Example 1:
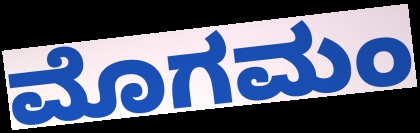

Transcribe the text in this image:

ಮೊಗಮಂ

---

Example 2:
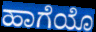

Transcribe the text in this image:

ಹಾಗೆಯೊ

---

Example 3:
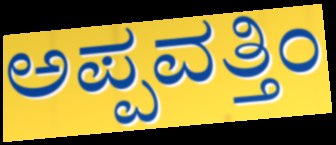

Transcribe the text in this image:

ಅಪ್ಪವತ್ತಿಂ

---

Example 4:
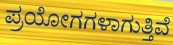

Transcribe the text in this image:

ಪ್ರಯೋಗಗಳಾಗುತ್ತಿವೆ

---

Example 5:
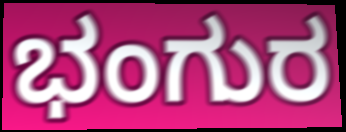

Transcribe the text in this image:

ಭಂಗುರ